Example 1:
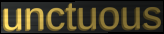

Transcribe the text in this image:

unctuous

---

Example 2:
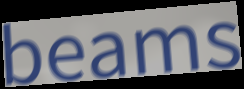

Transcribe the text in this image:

beams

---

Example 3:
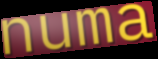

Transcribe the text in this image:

numa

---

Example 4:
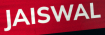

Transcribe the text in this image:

JAISWAL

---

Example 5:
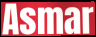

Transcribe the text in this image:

Asmar